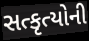
સત્કૃત્યોની